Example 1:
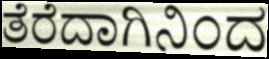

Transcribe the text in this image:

ತೆರೆದಾಗಿನಿಂದ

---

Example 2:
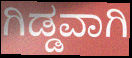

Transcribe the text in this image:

ಗಿಡ್ಡವಾಗಿ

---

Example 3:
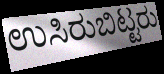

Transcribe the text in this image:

ಉಸಿರುಬಿಟ್ಟರು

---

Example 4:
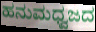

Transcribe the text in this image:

ಹನುಮಧ್ವಜದ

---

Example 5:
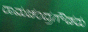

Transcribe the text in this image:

ರಾಮಚಂದ್ರಗೌಡರು